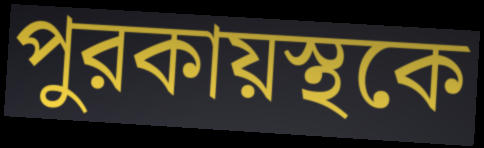
পুরকায়স্থকে